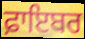
ਫ਼ਾਇਬਰ